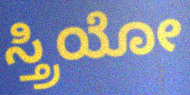
ಸ್ತ್ರಿಯೋ